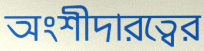
অংশীদারত্বের